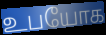
உபயோக